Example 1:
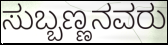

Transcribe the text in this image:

ಸುಬ್ಬಣ್ಣನವರು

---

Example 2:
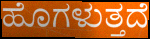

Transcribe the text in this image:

ಹೊಗಳುತ್ತದೆ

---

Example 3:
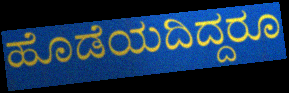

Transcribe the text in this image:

ಹೊಡೆಯದಿದ್ದರೂ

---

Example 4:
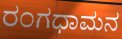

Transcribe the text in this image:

ರಂಗಧಾಮನ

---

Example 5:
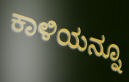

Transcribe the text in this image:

ಕಾಳಿಯನ್ನೂ